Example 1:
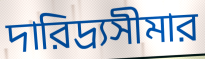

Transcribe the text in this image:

দারিদ্র্যসীমার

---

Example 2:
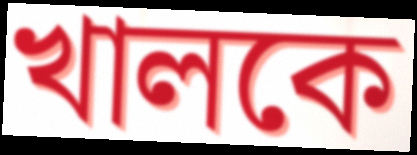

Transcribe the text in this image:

খালকে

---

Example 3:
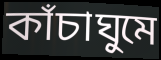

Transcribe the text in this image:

কাঁচাঘুমে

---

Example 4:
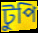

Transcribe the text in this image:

টুপি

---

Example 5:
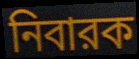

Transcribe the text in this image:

নিবারক